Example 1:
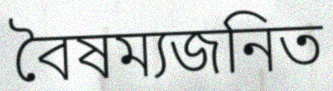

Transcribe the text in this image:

বৈষম্যজনিত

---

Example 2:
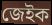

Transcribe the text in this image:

জেইক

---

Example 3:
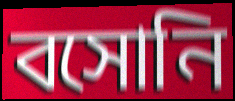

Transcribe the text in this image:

বসোনি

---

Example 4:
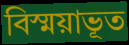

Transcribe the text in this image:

বিস্ময়াভূত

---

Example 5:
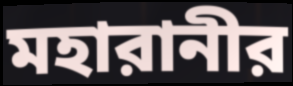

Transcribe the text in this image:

মহারানীর